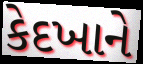
કેદખાને